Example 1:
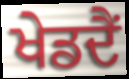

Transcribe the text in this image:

ਖੇਡਦੈਂ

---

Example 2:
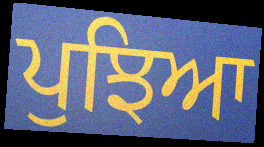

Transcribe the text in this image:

ਪੁਝਿਆ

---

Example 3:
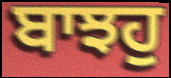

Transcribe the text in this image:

ਬਾਝਹੁ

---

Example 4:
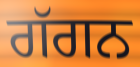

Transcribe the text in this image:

ਗੱਗਨ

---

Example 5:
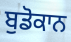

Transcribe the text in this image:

ਬੁਡੋਕਾਨ